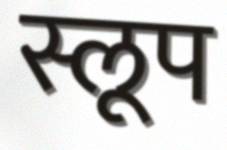
स्लूप